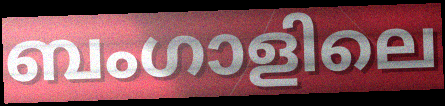
ബംഗാളിലെ